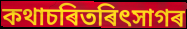
কথাচৰিতৰিৎসাগৰ